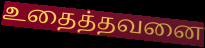
உதைத்தவனை